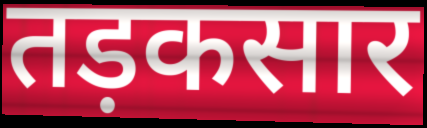
तड़कसार